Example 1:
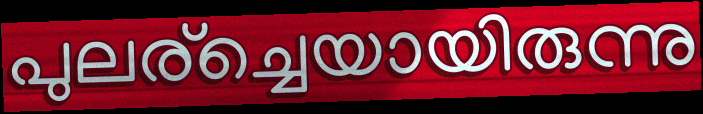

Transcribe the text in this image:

പുലര്ച്ചെയായിരുന്നു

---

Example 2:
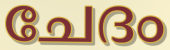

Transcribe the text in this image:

ചേദം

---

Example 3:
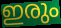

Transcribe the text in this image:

ഇരും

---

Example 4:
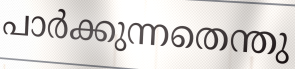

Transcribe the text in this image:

പാർക്കുന്നതെന്തു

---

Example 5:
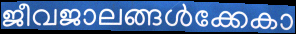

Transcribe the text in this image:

ജീവജാലങ്ങൾക്കേകാ